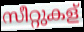
സീറ്റുകള്